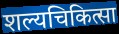
शल्‍यचिकित्‍सा